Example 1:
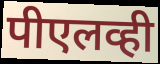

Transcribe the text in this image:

पीएलव्ही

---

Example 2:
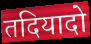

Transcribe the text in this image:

तदियादो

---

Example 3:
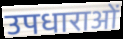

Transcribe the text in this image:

उपधाराओं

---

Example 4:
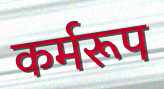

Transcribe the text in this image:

कर्मरूप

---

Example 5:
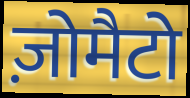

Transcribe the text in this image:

ज़ोमैटो